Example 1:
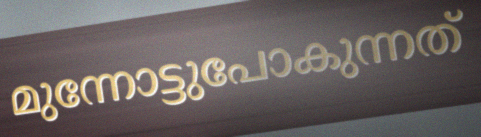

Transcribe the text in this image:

മുന്നോട്ടുപോകുന്നത്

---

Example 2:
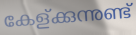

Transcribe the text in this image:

കേള്ക്കുന്നുണ്ട്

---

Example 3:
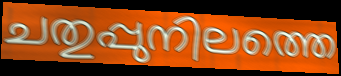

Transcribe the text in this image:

ചതുപ്പുനിലത്തെ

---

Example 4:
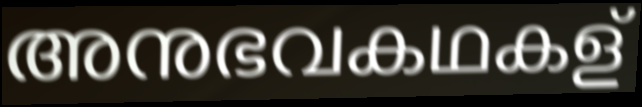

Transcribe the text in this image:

അനുഭവകഥകള്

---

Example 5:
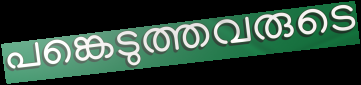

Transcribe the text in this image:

പങ്കെടുത്തവരുടെ